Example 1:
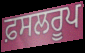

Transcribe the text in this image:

ਫ਼ਸਲਰੂਪ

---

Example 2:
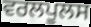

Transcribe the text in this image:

ਵਰਲਪੂਲਸ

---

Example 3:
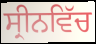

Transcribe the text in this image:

ਸ੍ਰੀਨਵਿੱਚ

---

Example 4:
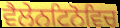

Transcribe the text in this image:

ਵੈਲੇਨਟਿਨੋਵਿਚ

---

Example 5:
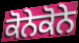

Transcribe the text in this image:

ਕੋਨੇਕੋਨੇ